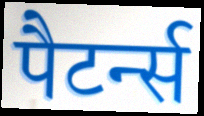
पैटर्न्स